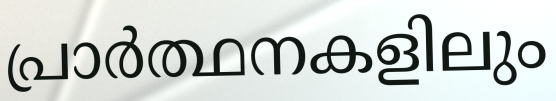
പ്രാർത്ഥനകളിലും